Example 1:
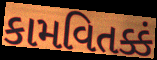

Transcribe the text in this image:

કામવિતક્કં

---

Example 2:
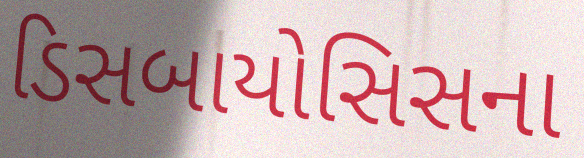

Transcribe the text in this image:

ડિસબાયોસિસના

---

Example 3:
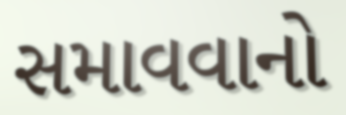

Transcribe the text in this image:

સમાવવાનો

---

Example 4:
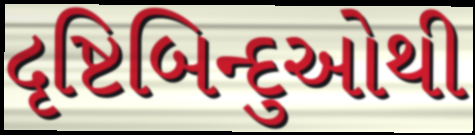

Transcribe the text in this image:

દૃષ્ટિબિન્દુઓથી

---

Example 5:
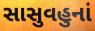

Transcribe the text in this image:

સાસુવહુનાં